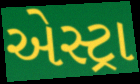
એસ્ટ્રા